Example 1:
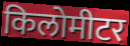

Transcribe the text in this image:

किलोमीटर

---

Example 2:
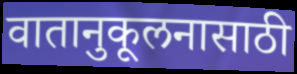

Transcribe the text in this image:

वातानुकूलनासाठी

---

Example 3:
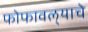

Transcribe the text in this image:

फोफावल्याचे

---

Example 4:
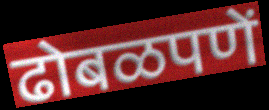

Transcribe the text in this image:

ढोबळपणें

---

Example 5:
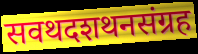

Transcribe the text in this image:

सवथदशथनसंग्रह